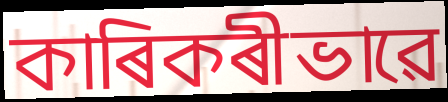
কাৰিকৰীভাৱে